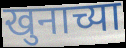
खुनाच्या